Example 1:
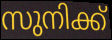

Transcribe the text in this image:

സുനിക്ക്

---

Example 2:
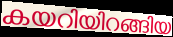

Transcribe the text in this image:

കയറിയിറങ്ങിയ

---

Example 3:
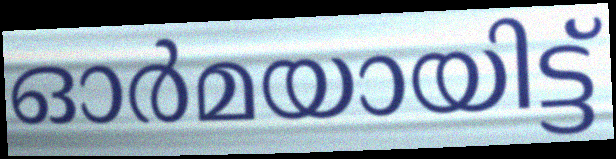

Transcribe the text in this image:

ഓർമയായിട്ട്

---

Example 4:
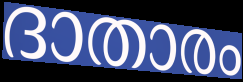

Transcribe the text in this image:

ദാതാരം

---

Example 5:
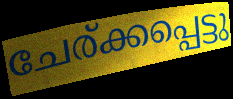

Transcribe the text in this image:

ചേര്ക്കപ്പെട്ടു